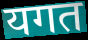
यगत